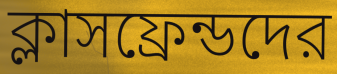
ক্লাসফ্রেন্ডদের